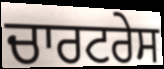
ਚਾਰਟਰੇਸ